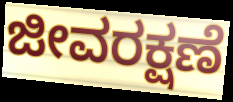
ಜೀವರಕ್ಷಣೆ